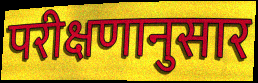
परीक्षणानुसार